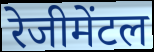
रेजीमेंटल